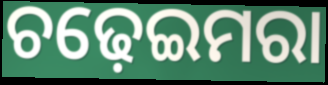
ଚଢ଼େଇମରା